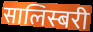
सालिस्बरी